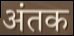
अंतक